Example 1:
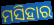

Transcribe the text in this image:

ମସିହାର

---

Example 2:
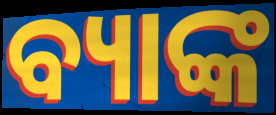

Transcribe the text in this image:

ବ୍ୟାଙ୍କ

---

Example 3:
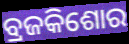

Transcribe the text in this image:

ବ୍ରଜକିଶୋର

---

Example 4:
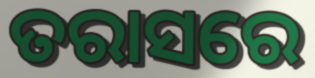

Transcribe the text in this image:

ତରାସରେ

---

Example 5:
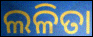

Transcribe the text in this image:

ଲଳିତା